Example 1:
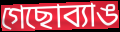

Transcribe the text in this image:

গেছোব্যাঙ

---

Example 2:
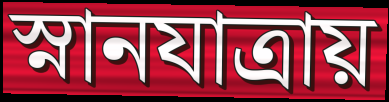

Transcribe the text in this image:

স্নানযাত্রায়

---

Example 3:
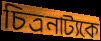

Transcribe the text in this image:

চিত্রনাট্যকে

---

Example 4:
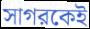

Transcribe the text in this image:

সাগরকেই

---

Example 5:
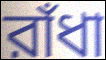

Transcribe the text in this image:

রাঁধা